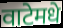
वाटेमधे